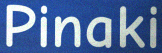
Pinaki